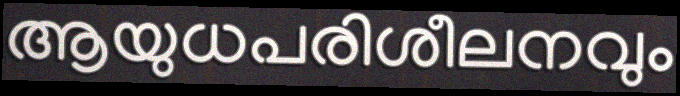
ആയുധപരിശീലനവും